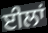
ਈਲਾਂ